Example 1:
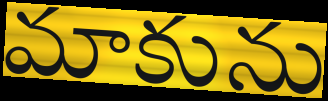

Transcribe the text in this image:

మాకును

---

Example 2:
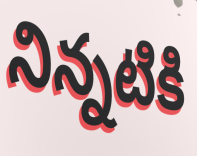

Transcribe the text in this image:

నిన్నటికి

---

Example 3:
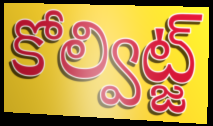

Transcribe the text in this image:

కోల్విట్జ్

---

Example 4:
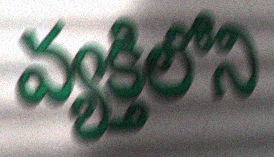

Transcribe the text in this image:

వ్యక్తిలోని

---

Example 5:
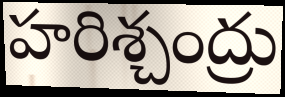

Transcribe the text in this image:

హరిశ్చంద్రు